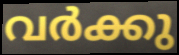
വർക്കു